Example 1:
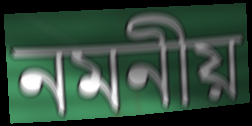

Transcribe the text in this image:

নমনীয়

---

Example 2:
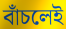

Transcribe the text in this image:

বাঁচলেই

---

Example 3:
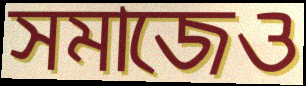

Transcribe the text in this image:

সমাজেও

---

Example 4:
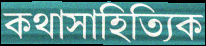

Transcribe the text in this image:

কথাসাহিত্যিক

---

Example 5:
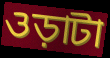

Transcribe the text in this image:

ওড়াটা